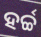
ହର୍ଚ୍ଚ